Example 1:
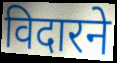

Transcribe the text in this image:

विदारने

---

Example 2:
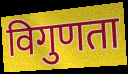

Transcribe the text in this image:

विगुणता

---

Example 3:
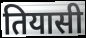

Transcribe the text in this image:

तियासी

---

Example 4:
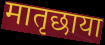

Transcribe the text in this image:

मातृछाया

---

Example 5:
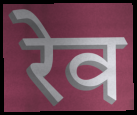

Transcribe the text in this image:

रेव